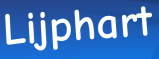
Lijphart